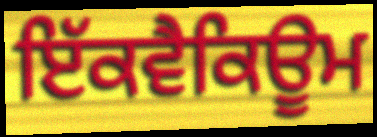
ਇੱਕਵੈਕਿਊਮ